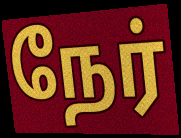
நேர்